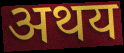
अथय